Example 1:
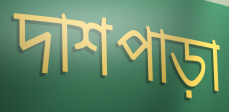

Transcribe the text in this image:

দাশপাড়া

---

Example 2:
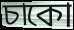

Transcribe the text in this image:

চাকো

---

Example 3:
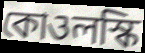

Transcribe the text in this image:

কোওলস্কি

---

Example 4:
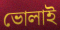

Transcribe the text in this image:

ভোলাই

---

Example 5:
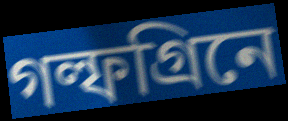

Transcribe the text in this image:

গল্ফগ্রিনে